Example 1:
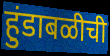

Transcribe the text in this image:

हुंडाबळीची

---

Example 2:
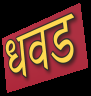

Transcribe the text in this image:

धवड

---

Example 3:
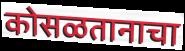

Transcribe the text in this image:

कोसळतानाचा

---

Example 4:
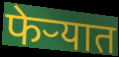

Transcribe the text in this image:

फेऱ्यात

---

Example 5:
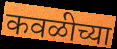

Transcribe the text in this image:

कवळीच्या